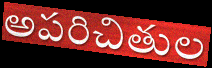
అపరిచితుల